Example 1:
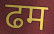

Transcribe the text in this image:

ढम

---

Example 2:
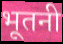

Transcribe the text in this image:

भूतनी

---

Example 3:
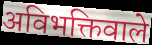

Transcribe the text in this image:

अविभक्तिवाले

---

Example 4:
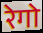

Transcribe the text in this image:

रेगो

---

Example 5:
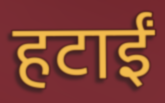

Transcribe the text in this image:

हटाईं